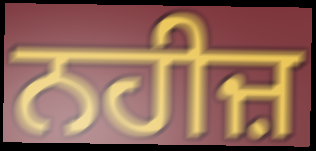
ਨਹੀਜ਼